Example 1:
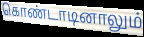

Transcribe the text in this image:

கொண்டாடினாலும்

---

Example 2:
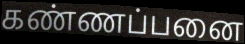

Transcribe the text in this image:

கண்ணப்பனை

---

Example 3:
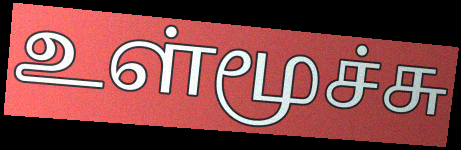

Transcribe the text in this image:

உள்மூச்சு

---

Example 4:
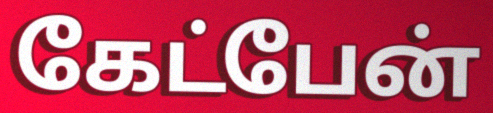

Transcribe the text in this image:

கேட்பேன்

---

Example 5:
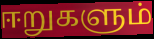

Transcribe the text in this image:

ஈறுகளும்